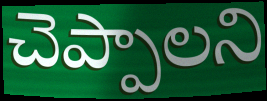
చెప్పాలని